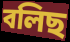
বলিছ